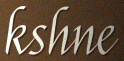
kshne